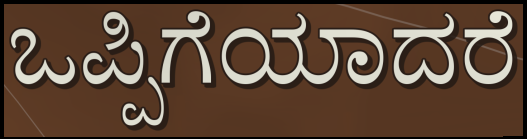
ಒಪ್ಪಿಗೆಯಾದರೆ